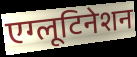
एग्लूटिनेशन